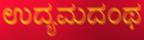
ಉದ್ಯಮದಂಥ